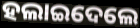
ହଲାଇଦେଲେ